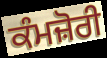
ਕੰਮਜ਼ੋਰੀ